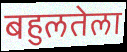
बहुलतेला